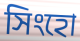
সিংহো